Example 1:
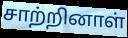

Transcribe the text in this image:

சாற்றினாள்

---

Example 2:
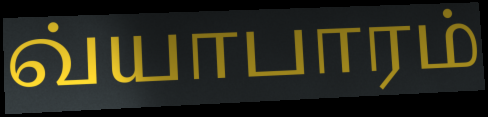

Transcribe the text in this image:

வ்யாபாரம்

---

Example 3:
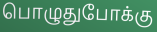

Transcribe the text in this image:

பொழுதுபோக்கு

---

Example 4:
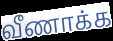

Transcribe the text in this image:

வீணாக்க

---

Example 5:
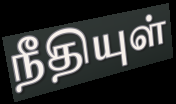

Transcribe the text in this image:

நீதியுள்